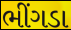
ભીંગડા